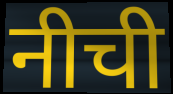
नीची